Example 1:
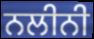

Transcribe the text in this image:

ਨਲੀਨੀ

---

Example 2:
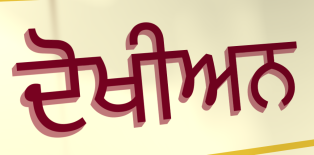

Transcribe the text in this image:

ਦੋਖੀਅਨ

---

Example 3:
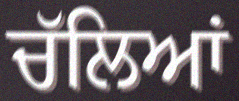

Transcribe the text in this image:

ਚੱਲਿਆਂ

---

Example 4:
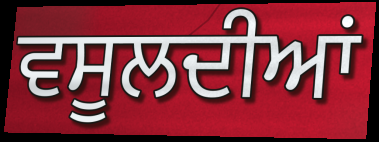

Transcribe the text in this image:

ਵਸੂਲਦੀਆਂ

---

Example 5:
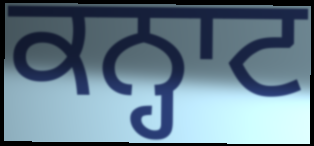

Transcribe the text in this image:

ਕਨ੍ਹਾਟ